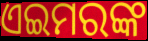
ଏଇମରଙ୍କ